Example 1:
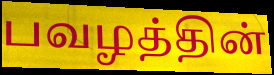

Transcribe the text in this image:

பவழத்தின்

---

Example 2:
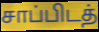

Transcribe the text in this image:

சாப்பிடத்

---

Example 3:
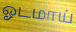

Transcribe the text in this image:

ஓடமாய்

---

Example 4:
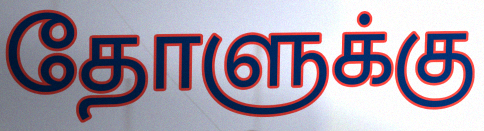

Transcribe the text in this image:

தோளுக்கு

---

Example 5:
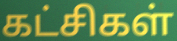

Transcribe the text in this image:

கட்சிகள்